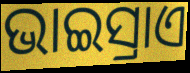
ଭାଇସ୍ରାଏ